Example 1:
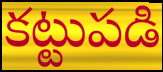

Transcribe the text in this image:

కట్టుపడి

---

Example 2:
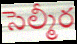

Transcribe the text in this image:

సెల్మీర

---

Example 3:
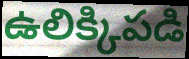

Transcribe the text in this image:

ఉలిక్కిపడి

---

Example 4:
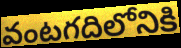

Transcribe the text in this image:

వంటగదిలోనికి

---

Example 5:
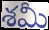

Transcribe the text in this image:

శమీ